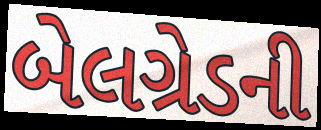
બેલગ્રેડની